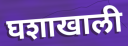
घशाखाली